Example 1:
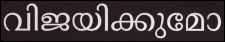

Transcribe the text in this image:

വിജയിക്കുമോ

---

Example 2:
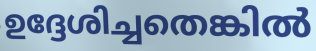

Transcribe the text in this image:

ഉദ്ദേശിച്ചതെങ്കിൽ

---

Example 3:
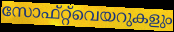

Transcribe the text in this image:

സോഫ്റ്റ്‌വെയറുകളും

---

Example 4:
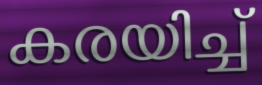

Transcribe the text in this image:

കരയിച്ച്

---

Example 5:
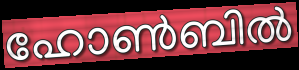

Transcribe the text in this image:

ഹോൺബിൽ